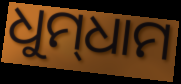
ଧୁମ୍‌ଧାମ